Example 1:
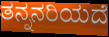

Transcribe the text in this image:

ತನ್ನನರಿಯದೆ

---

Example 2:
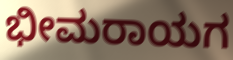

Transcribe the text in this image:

ಭೀಮರಾಯಗ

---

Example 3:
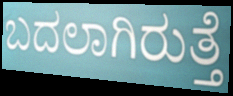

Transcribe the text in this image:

ಬದಲಾಗಿರುತ್ತೆ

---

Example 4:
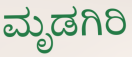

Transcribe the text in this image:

ಮೃಡಗಿರಿ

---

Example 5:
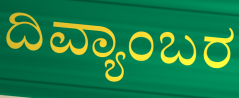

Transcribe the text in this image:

ದಿವ್ಯಾಂಬರ